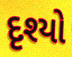
દૃશ્યો